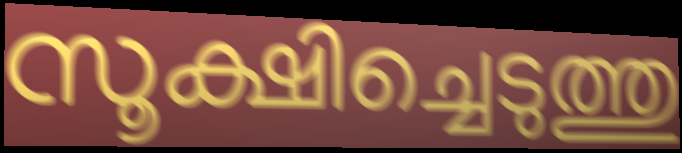
സൂക്ഷിച്ചെടുത്തു